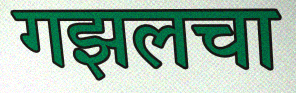
गझलचा